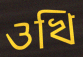
ওখি